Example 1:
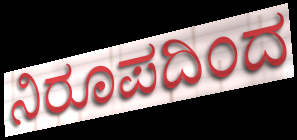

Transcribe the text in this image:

ನಿರೂಪದಿಂದ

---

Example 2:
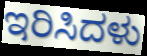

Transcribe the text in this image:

ಇರಿಸಿದಳು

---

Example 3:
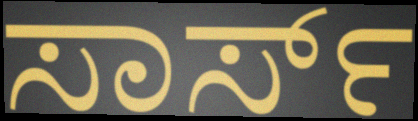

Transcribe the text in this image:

ಸಾರ್ಸ್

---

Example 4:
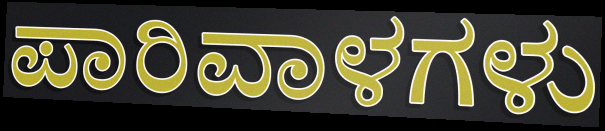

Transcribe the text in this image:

ಪಾರಿವಾಳಗಳು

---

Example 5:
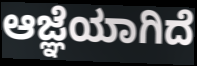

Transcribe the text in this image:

ಆಜ್ಞೆಯಾಗಿದೆ